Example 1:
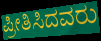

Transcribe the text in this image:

ಪ್ರೀತಿಸಿದವರು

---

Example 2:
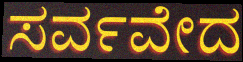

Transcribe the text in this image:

ಸರ್ವವೇದ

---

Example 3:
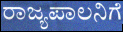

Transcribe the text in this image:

ರಾಜ್ಯಪಾಲನಿಗೆ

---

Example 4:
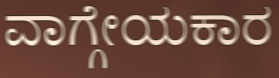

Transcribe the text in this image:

ವಾಗ್ಗೇಯಕಾರ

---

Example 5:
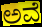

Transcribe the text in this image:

ಅವೆ